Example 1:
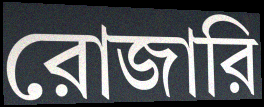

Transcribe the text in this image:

রোজারি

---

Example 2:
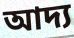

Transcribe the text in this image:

আদ্য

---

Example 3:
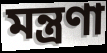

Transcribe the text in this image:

মন্ত্রণা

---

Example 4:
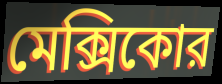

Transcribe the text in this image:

মেক্সিকোর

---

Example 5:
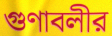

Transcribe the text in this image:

গুণাবলীর